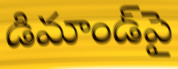
డిమాండ్‌పై